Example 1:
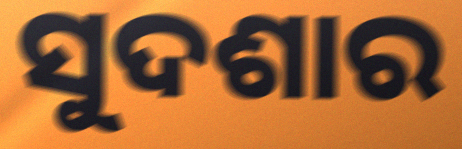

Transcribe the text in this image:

ସୁଦଶାର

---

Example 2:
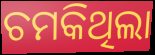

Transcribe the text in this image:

ଚମକିଥିଲା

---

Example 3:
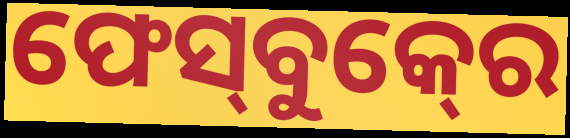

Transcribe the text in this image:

ଫେସ୍‍ବୁକ୍‍ରେ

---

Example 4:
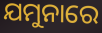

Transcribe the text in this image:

ଯମୁନାରେ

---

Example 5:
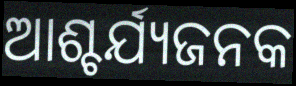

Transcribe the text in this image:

ଆଶ୍ଚର୍ଯ୍ୟଜନକ